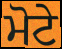
ਮੋਟੇ